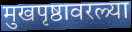
मुखपृष्ठावरल्या